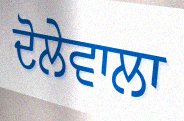
ਦੋਲੇਵਾਲਾ